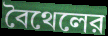
বৈথেলের